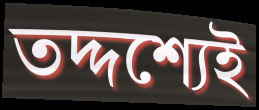
তদ্দশ্যেই